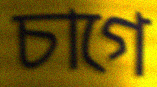
চাগে